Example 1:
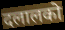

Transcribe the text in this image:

दलालको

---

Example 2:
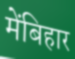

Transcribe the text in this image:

मेंबिहार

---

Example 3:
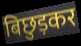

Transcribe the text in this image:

बिछुड़कर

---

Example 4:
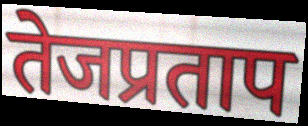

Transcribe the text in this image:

तेजप्रताप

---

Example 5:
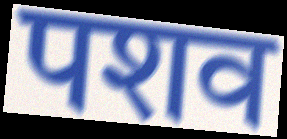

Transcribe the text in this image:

पशव